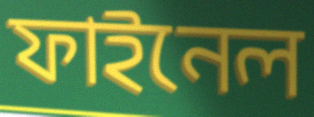
ফাইনেল